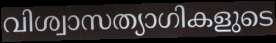
വിശ്വാസത്യാഗികളുടെ